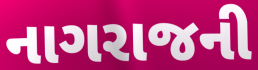
નાગરાજની